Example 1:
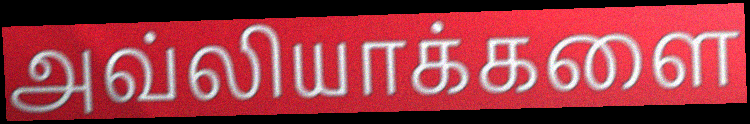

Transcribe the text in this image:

அவ்லியாக்களை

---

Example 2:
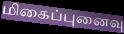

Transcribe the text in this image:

மிகைப்புனைவு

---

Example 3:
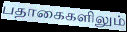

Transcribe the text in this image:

பதாகைகளிலும்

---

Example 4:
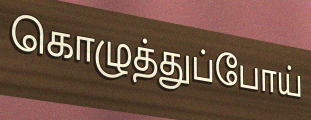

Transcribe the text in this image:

கொழுத்துப்போய்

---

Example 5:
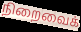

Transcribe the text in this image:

நிறைவைக்